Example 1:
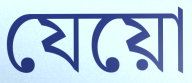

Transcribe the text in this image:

যেয়ো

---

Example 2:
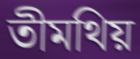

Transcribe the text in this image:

তীমথিয়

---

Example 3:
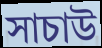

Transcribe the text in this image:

সাচাউ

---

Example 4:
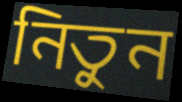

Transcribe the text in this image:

নিতুন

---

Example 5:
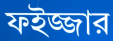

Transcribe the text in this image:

ফইজ্জার